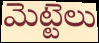
మెట్టెలు